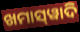
ଖମାସ୍‌ୱାଦି